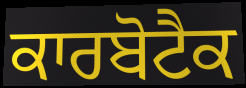
ਕਾਰਬੋਟੈਕ